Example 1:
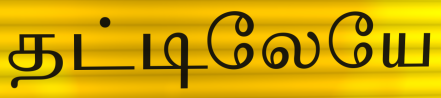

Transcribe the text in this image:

தட்டிலேயே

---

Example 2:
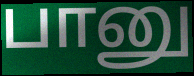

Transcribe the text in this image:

பானு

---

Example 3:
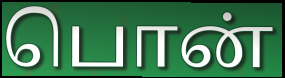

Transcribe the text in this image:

பொன்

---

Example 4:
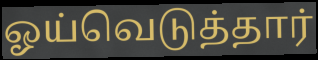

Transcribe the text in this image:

ஓய்வெடுத்தார்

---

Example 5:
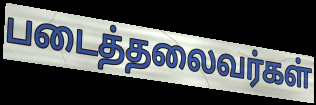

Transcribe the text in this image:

படைத்தலைவர்கள்